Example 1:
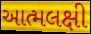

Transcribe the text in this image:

આત્મલક્ષી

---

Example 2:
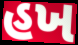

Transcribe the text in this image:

હખ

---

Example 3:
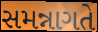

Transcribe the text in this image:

સમન્નાગતે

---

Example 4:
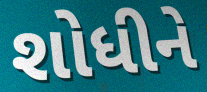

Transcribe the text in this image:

શોધીને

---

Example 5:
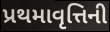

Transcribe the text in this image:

પ્રથમાવૃત્તિની